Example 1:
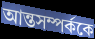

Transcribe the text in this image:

আন্তসম্পর্ককে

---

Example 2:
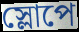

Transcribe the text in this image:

স্লোপে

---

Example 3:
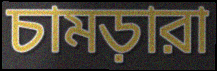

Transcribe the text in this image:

চামড়ারা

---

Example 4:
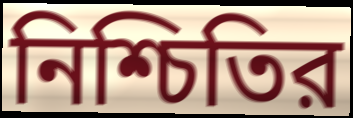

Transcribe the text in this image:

নিশ্চিতির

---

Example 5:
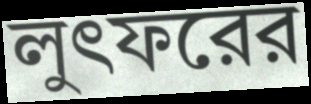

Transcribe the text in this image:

লুৎফরের